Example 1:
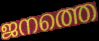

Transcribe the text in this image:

ജനത്തെ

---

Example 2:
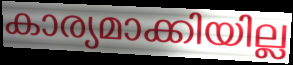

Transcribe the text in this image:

കാര്യമാക്കിയില്ല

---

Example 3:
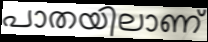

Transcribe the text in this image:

പാതയിലാണ്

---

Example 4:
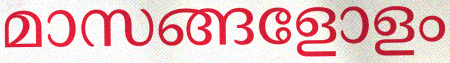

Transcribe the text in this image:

മാസങ്ങളോളം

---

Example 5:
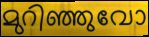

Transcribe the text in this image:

മുറിഞ്ഞുവോ